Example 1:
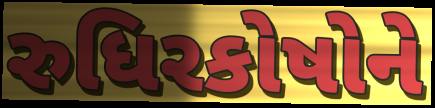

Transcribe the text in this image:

રુધિરકોષોને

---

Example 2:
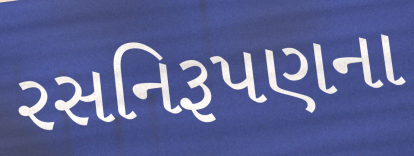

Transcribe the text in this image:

રસનિરૂપણના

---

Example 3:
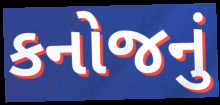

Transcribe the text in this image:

કનોજનું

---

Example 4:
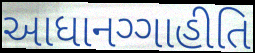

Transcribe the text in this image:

આધાનગ્ગાહીતિ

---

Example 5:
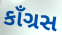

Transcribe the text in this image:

કાઁગ્રસ